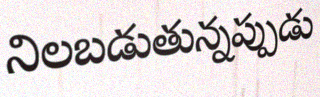
నిలబడుతున్నప్పుడు